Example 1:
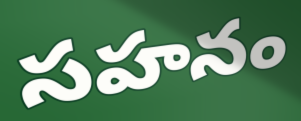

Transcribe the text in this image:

సహనం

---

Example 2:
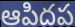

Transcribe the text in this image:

ఆపిదప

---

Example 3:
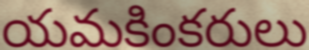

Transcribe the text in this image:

యమకింకరులు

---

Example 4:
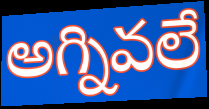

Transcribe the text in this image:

అగ్నివలే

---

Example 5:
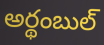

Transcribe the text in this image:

అర్థంబుల్